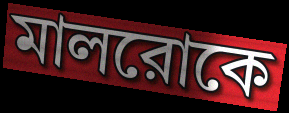
মালরোকে